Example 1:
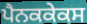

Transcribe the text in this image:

ਪੈਨਕਕੇਕਸ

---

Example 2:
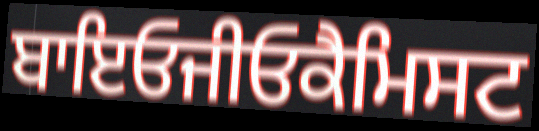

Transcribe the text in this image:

ਬਾਇਓਜੀਓਕੈਮਿਸਟ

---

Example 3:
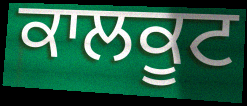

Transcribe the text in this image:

ਕਾਲਕੂਟ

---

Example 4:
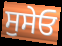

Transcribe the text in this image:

ਸੁਸੇਓ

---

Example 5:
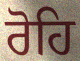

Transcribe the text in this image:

ਰੋਹਿ